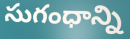
సుగంధాన్ని